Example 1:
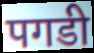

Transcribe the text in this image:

पगडी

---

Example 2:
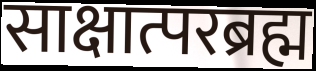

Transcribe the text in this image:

साक्षात्परब्रह्म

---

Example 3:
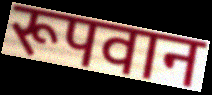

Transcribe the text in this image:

रूपवान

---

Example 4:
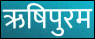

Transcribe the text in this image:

ऋषिपुरम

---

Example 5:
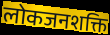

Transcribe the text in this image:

लोकजनशक्ति